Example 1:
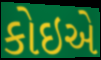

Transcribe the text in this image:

કોઇએ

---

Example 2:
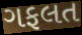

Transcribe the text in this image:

ગફલત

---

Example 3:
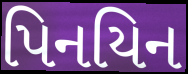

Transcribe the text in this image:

પિનયિન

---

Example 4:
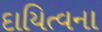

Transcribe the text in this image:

દાયિત્વના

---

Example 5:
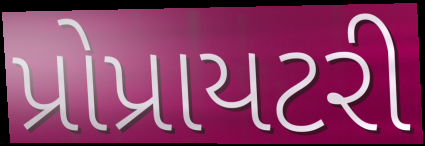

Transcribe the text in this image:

પ્રોપ્રાયટરી